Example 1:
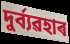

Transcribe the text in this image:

দুৰ্ব্যৱহাৰ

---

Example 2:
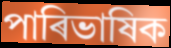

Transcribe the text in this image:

পাৰিভাষিক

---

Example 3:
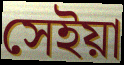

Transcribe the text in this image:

সেইয়া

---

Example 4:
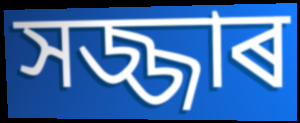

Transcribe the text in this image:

সজ্জাৰ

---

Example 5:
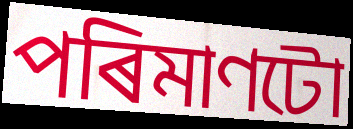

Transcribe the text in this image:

পৰিমাণটো